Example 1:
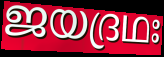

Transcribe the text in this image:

ജയദ്രഥഃ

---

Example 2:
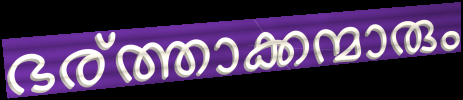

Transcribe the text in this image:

ഭര്ത്താക്കന്മാരും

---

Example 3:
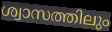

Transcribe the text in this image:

ശ്വാസത്തിലും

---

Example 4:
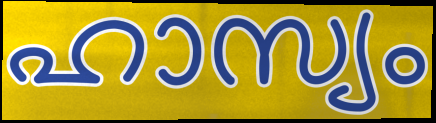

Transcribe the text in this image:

ഹാസ്യം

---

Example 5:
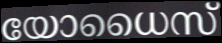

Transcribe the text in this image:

യോധൈസ്